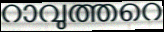
റാവുത്തറെ